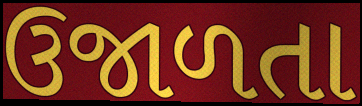
ઉજાળતા